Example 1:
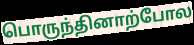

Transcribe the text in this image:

பொருந்தினாற்போல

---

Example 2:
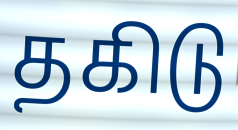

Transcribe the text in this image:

தகிடு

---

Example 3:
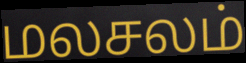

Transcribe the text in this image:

மலசலம்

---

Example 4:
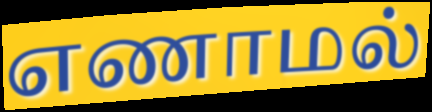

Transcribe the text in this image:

எணாமல்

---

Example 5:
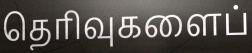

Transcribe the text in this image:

தெரிவுகளைப்